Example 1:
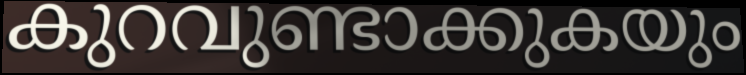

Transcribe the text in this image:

കുറവുണ്ടാക്കുകയും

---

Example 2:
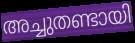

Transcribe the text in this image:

അച്ചുതണ്ടായി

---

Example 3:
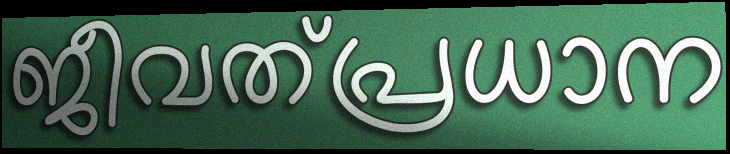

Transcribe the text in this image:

ജീവത്പ്രധാന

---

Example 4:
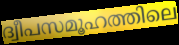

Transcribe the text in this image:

ദ്വീപസമൂഹത്തിലെ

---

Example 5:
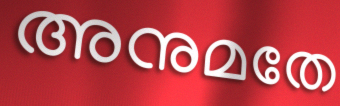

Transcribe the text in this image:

അനുമതേ